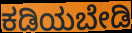
ಕಡಿಯಬೇಡಿ